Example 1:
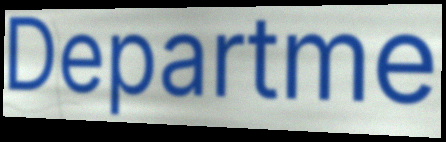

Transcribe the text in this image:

Departme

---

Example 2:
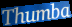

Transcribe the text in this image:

Thumba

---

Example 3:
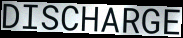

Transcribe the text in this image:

DISCHARGE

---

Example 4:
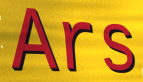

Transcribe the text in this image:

Ars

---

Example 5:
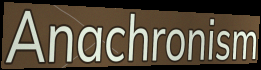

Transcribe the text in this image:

Anachronism